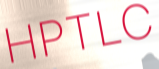
HPTLC